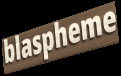
blaspheme